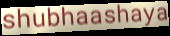
shubhaashaya